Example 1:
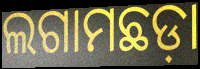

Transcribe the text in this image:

ଲଗାମଛଡ଼ା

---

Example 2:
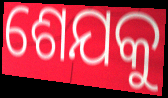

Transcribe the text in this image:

ଶେଯକୁ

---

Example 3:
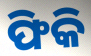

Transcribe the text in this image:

ଫିକି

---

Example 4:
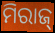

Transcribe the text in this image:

ମିରାଜ୍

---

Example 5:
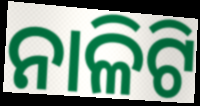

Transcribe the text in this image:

ନାଳିଟି